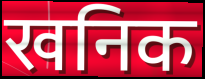
खनिक